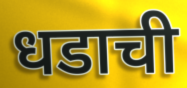
धडाची